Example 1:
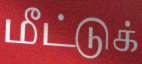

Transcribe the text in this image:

மீட்டுக்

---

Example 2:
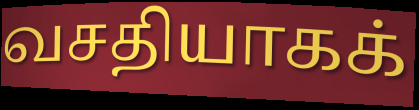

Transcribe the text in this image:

வசதியாகக்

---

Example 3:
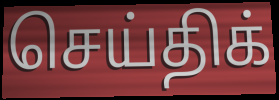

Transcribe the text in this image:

செய்திக்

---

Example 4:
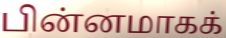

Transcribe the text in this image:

பின்னமாகக்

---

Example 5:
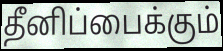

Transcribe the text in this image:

தீனிப்பைக்கும்